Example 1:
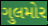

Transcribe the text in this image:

ગુલમોર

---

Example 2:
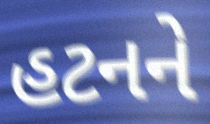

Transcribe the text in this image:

હટનને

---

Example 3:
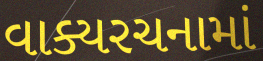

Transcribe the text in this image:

વાક્યરચનામાં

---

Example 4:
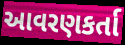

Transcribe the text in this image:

આવરણકર્તા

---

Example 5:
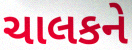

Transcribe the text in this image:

ચાલકને